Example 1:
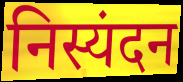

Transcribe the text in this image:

निस्यंदन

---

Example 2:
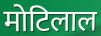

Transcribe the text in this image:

मोटिलाल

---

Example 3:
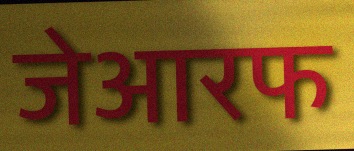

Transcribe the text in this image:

जेआरफ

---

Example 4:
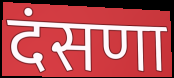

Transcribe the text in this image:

दंसणा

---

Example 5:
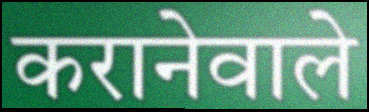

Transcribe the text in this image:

करानेवाले